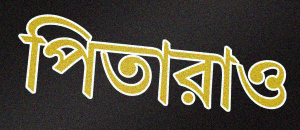
পিতারাও